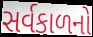
સર્વકાળનો